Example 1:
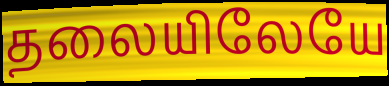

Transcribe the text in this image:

தலையிலேயே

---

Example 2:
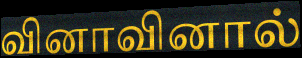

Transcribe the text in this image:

வினாவினால்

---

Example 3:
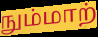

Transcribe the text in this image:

நும்மாற்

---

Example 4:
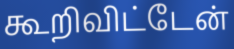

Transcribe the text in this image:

கூறிவிட்டேன்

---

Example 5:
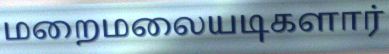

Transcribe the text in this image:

மறைமலையடிகளார்